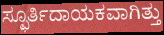
ಸ್ಫೂರ್ತಿದಾಯಕವಾಗಿತ್ತು